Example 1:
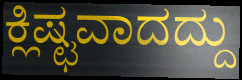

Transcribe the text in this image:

ಕ್ಲಿಷ್ಟವಾದದ್ದು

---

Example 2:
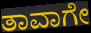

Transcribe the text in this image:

ತಾವಾಗೇ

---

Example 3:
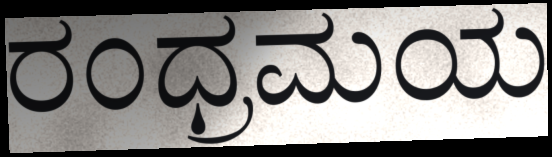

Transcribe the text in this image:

ರಂಧ್ರಮಯ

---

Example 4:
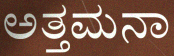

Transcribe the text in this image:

ಅತ್ತಮನಾ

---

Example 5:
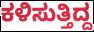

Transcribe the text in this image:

ಕಳಿಸುತ್ತಿದ್ದ